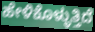
ಹೇಳಿಕೊಳ್ಳುತ್ತಿದೆ